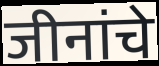
जीनांचे